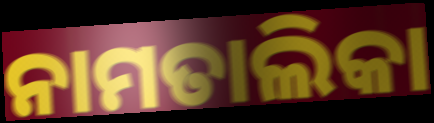
ନାମତାଲିକା